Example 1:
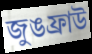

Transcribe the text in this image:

জুঙফ্রাউ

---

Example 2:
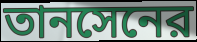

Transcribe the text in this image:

তানসেনের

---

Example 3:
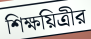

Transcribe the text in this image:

শিক্ষয়িত্রীর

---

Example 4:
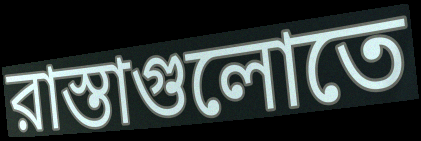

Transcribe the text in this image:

রাস্তাগুলোতে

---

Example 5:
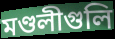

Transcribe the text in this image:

মণ্ডলীগুলি